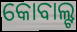
କୋବାଲ୍ଟ